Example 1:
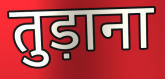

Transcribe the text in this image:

तुड़ाना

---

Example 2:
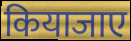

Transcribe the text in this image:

कियाजाए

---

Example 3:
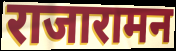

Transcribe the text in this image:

राजारामन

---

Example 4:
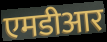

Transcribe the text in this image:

एमडीआर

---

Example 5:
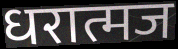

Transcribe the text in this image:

धरात्मज